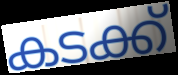
കടക്ക്